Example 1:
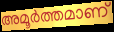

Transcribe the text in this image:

അമൂർത്തമാണ്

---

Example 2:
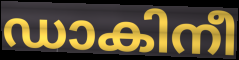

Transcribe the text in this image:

ഡാകിനീ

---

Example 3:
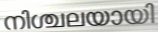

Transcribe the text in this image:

നിശ്ചലയായി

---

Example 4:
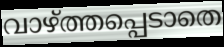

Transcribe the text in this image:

വാഴ്ത്തപ്പെടാതെ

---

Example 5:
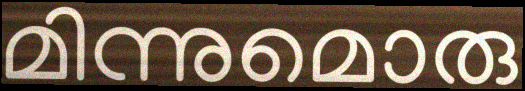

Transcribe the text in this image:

മിന്നുമൊരു